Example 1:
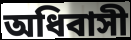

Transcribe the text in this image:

অধিবাসী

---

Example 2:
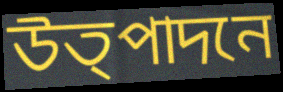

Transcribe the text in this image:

উত্পাদনে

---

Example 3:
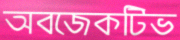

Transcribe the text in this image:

অবজেকটিভ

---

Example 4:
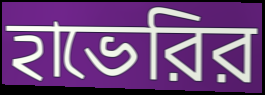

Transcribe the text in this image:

হাভেরির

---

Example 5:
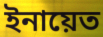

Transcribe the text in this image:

ইনায়েত